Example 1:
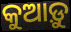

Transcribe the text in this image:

କୁଆଡ଼ୁ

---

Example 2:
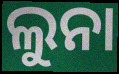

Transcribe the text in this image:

ଲୁନା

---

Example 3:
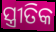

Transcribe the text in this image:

ସ୍ତ୍ରୀତିକ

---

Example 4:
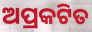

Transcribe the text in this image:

ଅପ୍ରକଟିତ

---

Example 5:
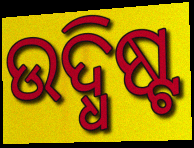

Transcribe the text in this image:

ଉଦ୍ଧିଷ୍ଟ